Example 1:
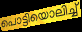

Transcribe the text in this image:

പൊട്ടിയൊലിച്ച്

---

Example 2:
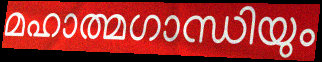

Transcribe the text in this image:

മഹാത്മഗാന്ധിയും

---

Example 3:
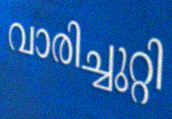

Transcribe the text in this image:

വാരിച്ചുറ്റി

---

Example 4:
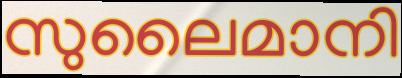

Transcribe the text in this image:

സുലൈമാനി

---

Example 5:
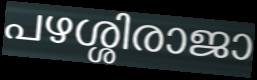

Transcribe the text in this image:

പഴശ്ശിരാജാ